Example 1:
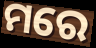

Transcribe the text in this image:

ମରେ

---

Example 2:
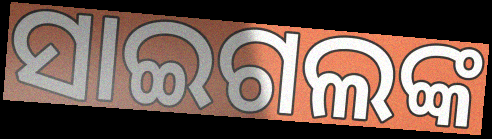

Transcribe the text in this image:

ସାଇଗଲଙ୍କ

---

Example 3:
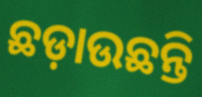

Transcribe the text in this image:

ଛଡ଼ାଉଛନ୍ତି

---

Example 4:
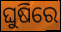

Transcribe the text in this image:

ଘୁଷିରେ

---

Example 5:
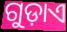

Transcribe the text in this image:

ଗୁଡ଼ାଏ